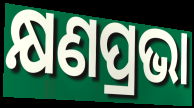
କ୍ଷଣପ୍ରଭା